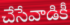
చేసేవాడికీ